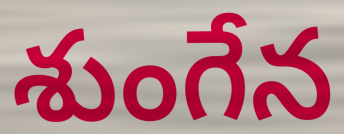
శుంగేన